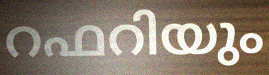
റഫറിയും